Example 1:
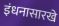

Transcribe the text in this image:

इंधनासारखे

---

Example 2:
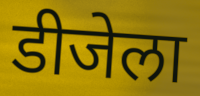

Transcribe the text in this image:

डीजेला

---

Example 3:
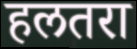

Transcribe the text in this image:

हलतरा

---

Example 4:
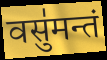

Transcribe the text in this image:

वसु॑मन्तं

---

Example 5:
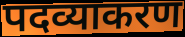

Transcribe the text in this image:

पदव्याकरण